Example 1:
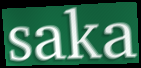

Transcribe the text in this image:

saka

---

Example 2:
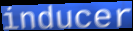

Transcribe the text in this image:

inducer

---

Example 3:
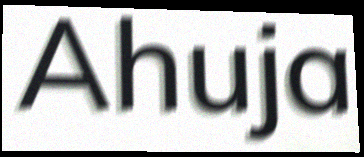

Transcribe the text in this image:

Ahuja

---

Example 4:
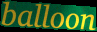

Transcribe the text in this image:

balloon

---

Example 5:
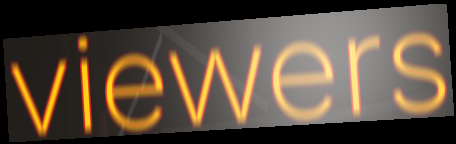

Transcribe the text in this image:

viewers